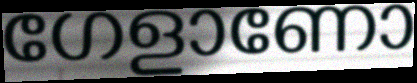
ഗേളാണോ